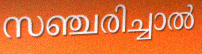
സഞ്ചരിച്ചാൽ